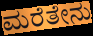
ಮರೆತೇನು